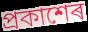
প্ৰকাশেৰ